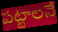
పట్టాలనే